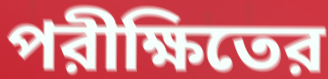
পরীক্ষিতের